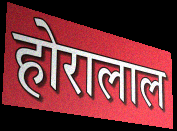
होरालाल